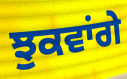
ਝੁਕਵਾਂਗੇ